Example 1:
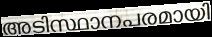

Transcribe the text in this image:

അടിസ്ഥാനപരമായി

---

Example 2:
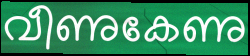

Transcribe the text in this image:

വീണുകേണു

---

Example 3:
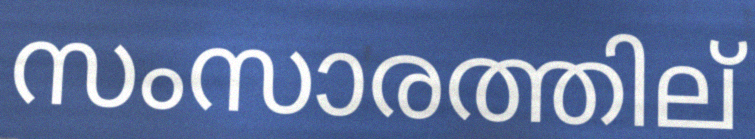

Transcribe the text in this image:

സംസാരത്തില്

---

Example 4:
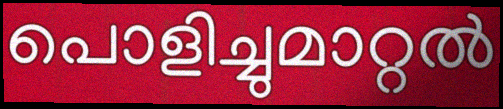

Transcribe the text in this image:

പൊളിച്ചുമാറ്റൽ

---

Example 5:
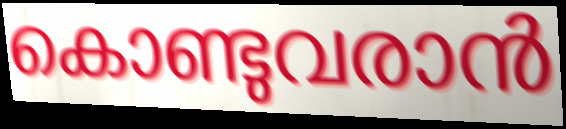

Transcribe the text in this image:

കൊണ്ടുവരാൻ